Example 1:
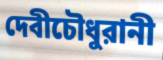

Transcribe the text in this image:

দেবীচৌধুরানী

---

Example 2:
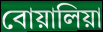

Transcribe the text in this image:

বোয়ালিয়া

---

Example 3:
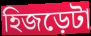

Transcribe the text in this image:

হিজড়েটা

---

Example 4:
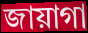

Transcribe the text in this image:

জায়াগা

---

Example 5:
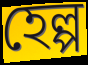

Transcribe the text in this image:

হেল্প